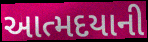
આત્મદયાની